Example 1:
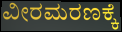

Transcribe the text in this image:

ವೀರಮರಣಕ್ಕೆ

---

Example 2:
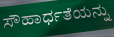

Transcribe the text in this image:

ಸೌಹಾರ್ಧತೆಯನ್ನು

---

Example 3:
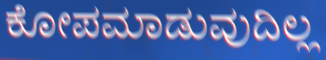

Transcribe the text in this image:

ಕೋಪಮಾಡುವುದಿಲ್ಲ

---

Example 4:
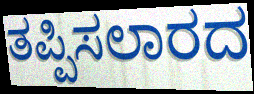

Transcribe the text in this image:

ತಪ್ಪಿಸಲಾರದ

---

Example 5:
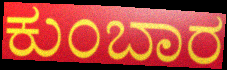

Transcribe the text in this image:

ಕುಂಬಾರ